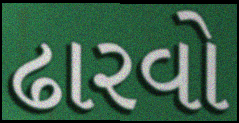
ઢારવો